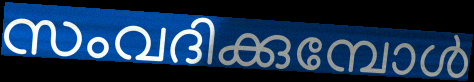
സംവദിക്കുമ്പോൾ